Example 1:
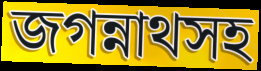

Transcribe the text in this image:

জগন্নাথসহ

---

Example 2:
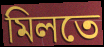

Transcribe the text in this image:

মিলতে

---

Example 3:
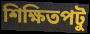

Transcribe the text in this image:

শিক্ষিতপটু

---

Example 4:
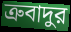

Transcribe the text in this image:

ত্রুবাদুর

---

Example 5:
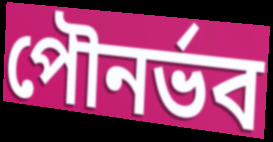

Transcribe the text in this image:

পৌনর্ভব